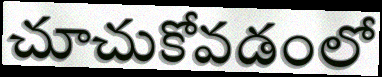
చూచుకోవడంలో